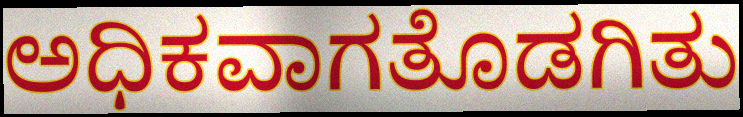
ಅಧಿಕವಾಗತೊಡಗಿತು